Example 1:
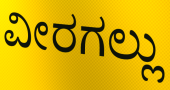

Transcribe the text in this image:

ವೀರಗಲ್ಲು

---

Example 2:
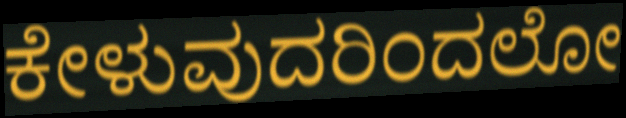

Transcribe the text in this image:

ಕೇಳುವುದರಿಂದಲೋ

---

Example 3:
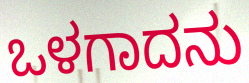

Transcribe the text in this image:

ಒಳಗಾದನು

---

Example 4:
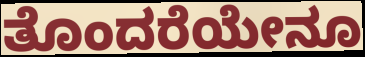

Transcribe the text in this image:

ತೊಂದರೆಯೇನೂ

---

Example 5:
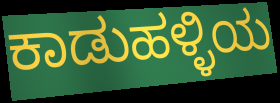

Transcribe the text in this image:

ಕಾಡುಹಳ್ಳಿಯ